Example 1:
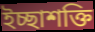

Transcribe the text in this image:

ইচ্ছাশক্তি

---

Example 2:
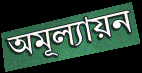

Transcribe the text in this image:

অমূল্যায়ন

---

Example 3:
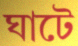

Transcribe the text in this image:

ঘাটে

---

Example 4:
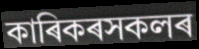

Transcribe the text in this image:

কাৰিকৰসকলৰ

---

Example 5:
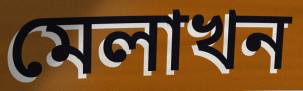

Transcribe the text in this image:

মেলাখন